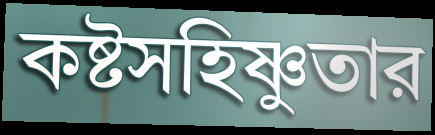
কষ্টসহিষ্ণুতার